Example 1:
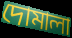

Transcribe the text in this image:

দোমালা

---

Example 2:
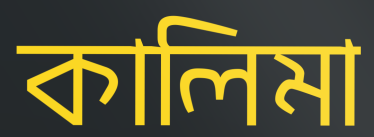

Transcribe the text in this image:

কালিমা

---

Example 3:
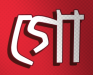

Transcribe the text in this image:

গো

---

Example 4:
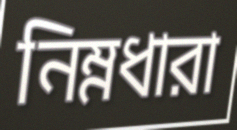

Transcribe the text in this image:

নিম্নধারা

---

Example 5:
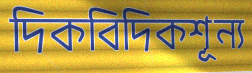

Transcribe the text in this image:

দিকবিদিকশূন্য